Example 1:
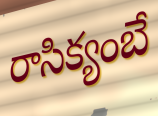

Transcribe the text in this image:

రాసిక్యంబే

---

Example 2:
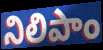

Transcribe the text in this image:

నిలిపాం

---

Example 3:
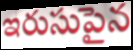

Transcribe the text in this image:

ఇరుసుపైన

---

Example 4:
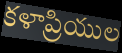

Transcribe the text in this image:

కళాప్రియుల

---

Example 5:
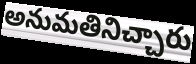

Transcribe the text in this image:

అనుమతినిచ్చారు